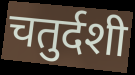
चतुर्दशी